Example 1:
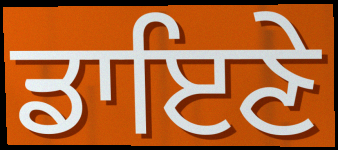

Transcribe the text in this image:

ਡਾਇਣੇ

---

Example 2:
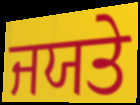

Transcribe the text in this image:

ਜਯਤੇ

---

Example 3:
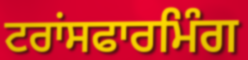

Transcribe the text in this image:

ਟਰਾਂਸਫਾਰਮਿੰਗ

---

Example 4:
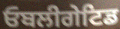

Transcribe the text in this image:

ਓਬਲੀਗੇਟਿਡ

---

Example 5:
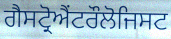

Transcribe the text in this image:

ਗੈਸਟ੍ਰੋਐਂਟਰੌਲੋਜਿਸਟ